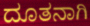
ದೂತನಾಗಿ